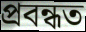
প্ৰবন্ধত